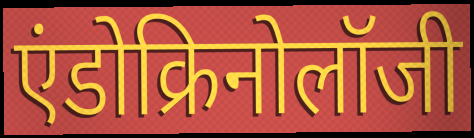
एंडोक्रिनोलॉजी